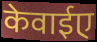
केवाईए